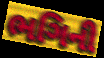
ભગિની